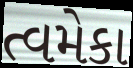
ત્વમેકા